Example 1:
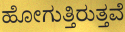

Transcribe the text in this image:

ಹೋಗುತ್ತಿರುತ್ತವೆ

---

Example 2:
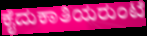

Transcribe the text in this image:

ಕೈದುಕಾತಿಯರುಂಟೆ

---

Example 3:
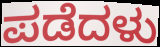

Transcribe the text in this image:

ಪಡೆದಳು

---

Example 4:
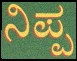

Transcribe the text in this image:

ನಿಪ್ಪ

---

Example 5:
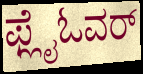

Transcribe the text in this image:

ಫ್ಲೈಓವರ್